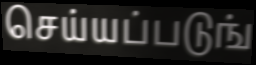
செய்யப்படுங்